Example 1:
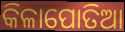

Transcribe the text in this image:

କିଳାପୋତିଆ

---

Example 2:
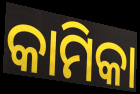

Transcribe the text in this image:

କାମିକା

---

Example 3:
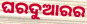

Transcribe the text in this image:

ଘରଦୁଆରର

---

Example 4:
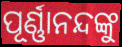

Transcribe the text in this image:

ପୂର୍ଣ୍ଣାନନ୍ଦଙ୍କୁ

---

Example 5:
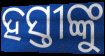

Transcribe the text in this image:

ହସ୍ତୀଙ୍କୁ